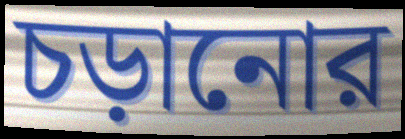
চড়ানোর